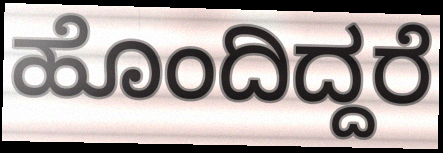
ಹೊಂದಿದ್ದರೆ